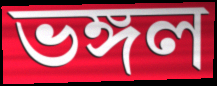
ভঙ্গল